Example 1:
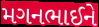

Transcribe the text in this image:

મગનભાઈને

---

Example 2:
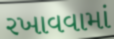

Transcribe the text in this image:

રખાવવામાં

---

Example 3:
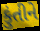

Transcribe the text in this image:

કુંતીને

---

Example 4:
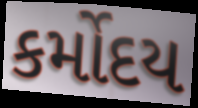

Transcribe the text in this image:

કર્મોદય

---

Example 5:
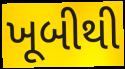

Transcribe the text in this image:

ખૂબીથી